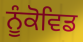
ਨੂੰਕੋਵਿਡ